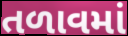
તળાવમાં